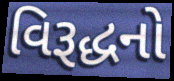
વિરૂદ્ધનો